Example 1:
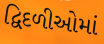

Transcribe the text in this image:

દ્વિદળીઓમાં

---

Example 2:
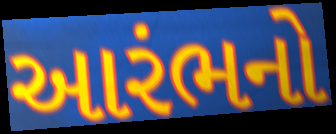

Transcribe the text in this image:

આરંભનો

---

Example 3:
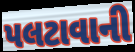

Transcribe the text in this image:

પલટાવાની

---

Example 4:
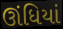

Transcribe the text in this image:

ઊંધિયાં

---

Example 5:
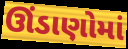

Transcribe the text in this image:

ઊંડાણોમાં